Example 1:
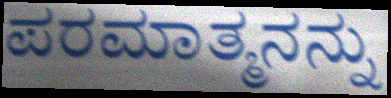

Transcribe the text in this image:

ಪರಮಾತ್ಮನನ್ನು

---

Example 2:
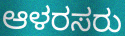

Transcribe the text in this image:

ಆಳರಸರು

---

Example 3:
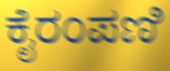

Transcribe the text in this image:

ಕೈರಂಪಣಿ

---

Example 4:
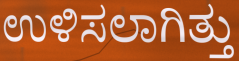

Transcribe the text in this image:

ಉಳಿಸಲಾಗಿತ್ತು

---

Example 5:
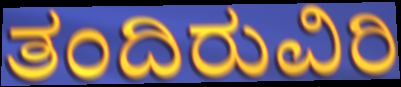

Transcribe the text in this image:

ತಂದಿರುವಿರಿ